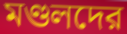
মণ্ডলদের